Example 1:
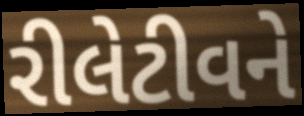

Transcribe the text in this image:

રીલેટીવને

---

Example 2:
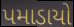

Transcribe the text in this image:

પમાડાયો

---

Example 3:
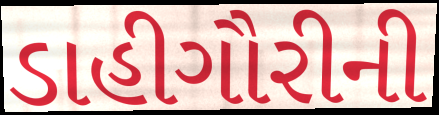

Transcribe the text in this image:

ડાહીગૌરીની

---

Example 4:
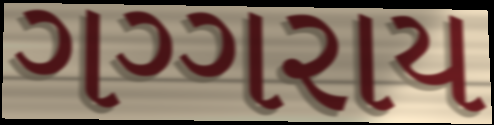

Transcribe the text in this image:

ગગ્ગરાય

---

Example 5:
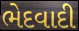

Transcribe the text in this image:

ભેદવાદી